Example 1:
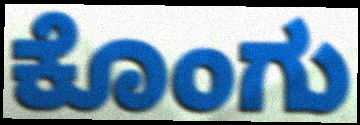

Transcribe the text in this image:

ಕೊಂಗು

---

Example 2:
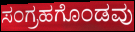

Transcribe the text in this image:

ಸಂಗ್ರಹಗೊಂಡವು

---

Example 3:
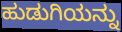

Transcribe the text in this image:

ಹುಡುಗಿಯನ್ನು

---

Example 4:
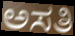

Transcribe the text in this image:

ಅಸತಿ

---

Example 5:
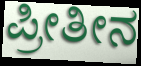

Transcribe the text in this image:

ಪ್ರೀತೀನ